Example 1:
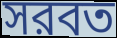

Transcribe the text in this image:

সরবত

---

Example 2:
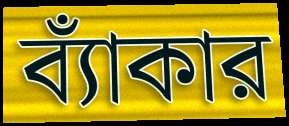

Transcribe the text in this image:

ব্যাঁকার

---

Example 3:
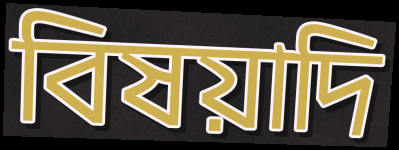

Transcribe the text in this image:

বিষয়াদি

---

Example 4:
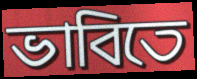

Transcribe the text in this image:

ভাবিতে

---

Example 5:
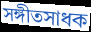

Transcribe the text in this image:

সঙ্গীতসাধক